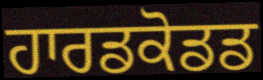
ਹਾਰਡਕੋਡਡ